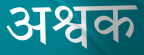
अश्वक